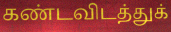
கண்டவிடத்துக்